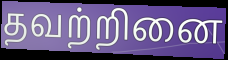
தவற்றினை